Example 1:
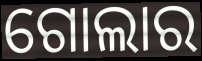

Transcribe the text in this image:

ଗୋଲାର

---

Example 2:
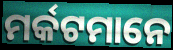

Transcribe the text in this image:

ମର୍କଟମାନେ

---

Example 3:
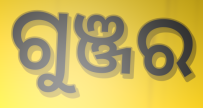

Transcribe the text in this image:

ଗୁଞ୍ଜର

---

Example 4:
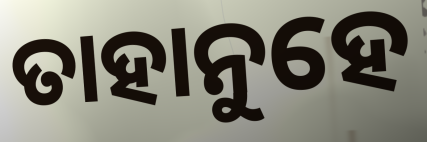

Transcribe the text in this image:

ତାହାନୁହେ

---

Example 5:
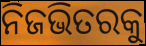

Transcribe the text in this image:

ନିଜଭିତରକୁ